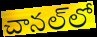
చానల్‌లో